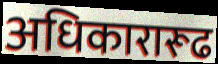
अधिकारारूढ